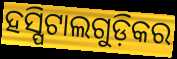
ହସ୍ପିଟାଲଗୁଡ଼ିକର